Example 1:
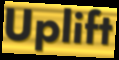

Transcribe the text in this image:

Uplift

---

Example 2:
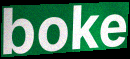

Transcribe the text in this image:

boke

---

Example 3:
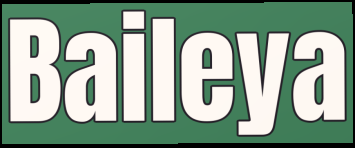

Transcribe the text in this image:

Baileya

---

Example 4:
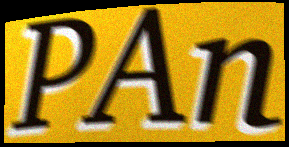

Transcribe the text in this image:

PAn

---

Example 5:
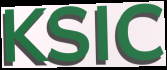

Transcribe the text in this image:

KSIC